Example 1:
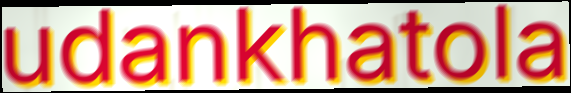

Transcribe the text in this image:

udankhatola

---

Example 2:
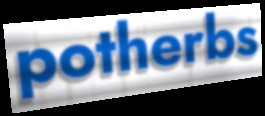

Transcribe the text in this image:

potherbs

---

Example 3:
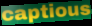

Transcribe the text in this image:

captious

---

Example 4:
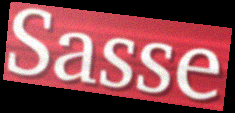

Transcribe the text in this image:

Sasse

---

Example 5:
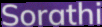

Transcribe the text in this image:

Sorathi